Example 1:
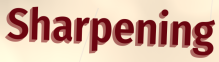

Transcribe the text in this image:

Sharpening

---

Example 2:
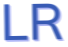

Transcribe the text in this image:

LR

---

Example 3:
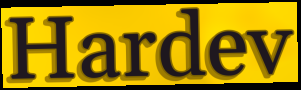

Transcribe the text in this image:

Hardev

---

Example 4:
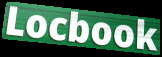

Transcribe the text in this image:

Locbook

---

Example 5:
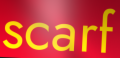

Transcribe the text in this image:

scarf